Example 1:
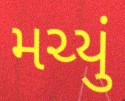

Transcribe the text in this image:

મચ્યું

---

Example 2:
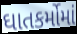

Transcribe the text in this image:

ઘાતકર્મોમાં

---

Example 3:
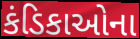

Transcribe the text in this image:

કંડિકાઓના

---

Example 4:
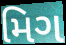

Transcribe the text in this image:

મિગ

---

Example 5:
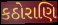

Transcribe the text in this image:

કઠોરાણિ